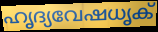
ഹൃദ്യവേഷധൃക്